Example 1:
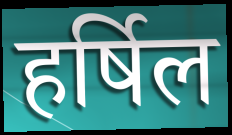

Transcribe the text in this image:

हर्षिल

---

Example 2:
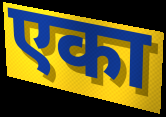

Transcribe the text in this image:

एका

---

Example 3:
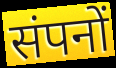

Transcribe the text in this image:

संपनों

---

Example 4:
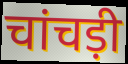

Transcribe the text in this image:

चांचड़ी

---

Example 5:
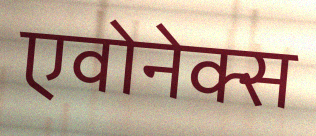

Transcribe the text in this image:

एवोनेक्स